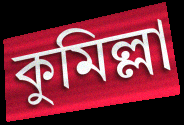
কুমিল্লা